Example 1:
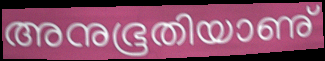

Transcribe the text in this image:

അനുഭൂതിയാണു്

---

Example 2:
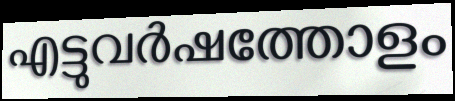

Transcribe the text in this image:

എട്ടുവർഷത്തോളം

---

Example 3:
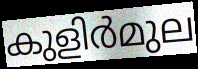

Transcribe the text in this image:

കുളിർമുല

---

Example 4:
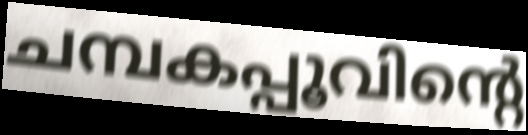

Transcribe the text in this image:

ചമ്പകപ്പൂവിന്റെ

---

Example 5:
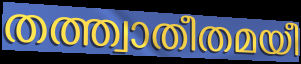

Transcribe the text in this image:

തത്ത്വാതീതമയീ